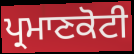
ਪ੍ਰਮਾਣਕੋਟੀ